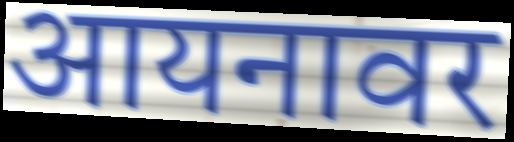
आयनावर